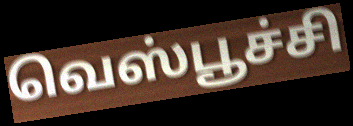
வெஸ்பூச்சி